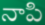
నాపి